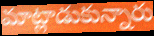
మాట్లాడుకున్నారు